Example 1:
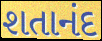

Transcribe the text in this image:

શતાનંદ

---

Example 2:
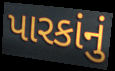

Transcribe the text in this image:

પારકાંનું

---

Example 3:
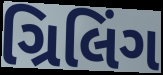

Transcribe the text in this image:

ગ્રિલિંગ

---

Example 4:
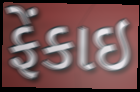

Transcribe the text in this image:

ફેંકાઇ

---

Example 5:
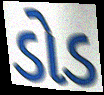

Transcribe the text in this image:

ડોડ